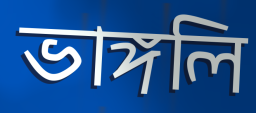
ভাঙ্গলি